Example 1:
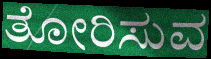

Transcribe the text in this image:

ತೋರಿಸುವ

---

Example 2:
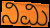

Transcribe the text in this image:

ನಿಮಿ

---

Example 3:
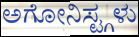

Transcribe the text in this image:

ಅಗೋನಿಸ್ಟ್ಗಳು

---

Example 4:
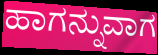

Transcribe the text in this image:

ಹಾಗನ್ನುವಾಗ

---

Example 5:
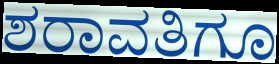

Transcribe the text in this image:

ಶರಾವತಿಗೂ